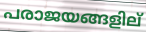
പരാജയങ്ങളില്